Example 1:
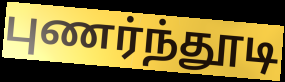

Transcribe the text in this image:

புணர்ந்தூடி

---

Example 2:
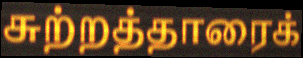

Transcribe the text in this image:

சுற்றத்தாரைக்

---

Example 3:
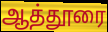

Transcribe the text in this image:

ஆத்தூரை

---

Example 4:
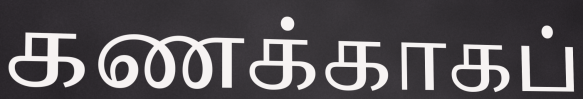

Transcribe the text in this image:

கணக்காகப்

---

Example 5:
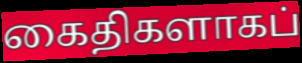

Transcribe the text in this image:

கைதிகளாகப்